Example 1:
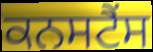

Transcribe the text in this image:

ਕਨਸਟੈਂਸ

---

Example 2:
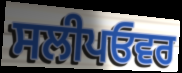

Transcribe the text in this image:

ਸਲੀਪਓਵਰ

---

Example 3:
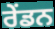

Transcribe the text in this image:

ਰੇਂਡਨ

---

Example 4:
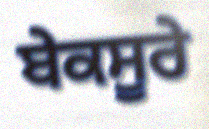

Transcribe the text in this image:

ਬੇਕਸੂਰੇ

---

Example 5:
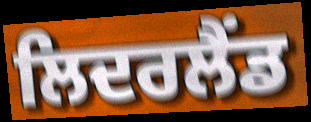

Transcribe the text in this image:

ਲਿਦਰਲੈਂਡ